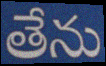
తేను